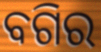
ବଗିର